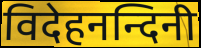
विदेहनन्दिनी